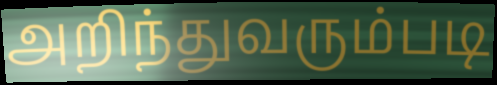
அறிந்துவரும்படி